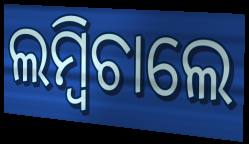
ଲମ୍ବିଚାଲେ